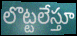
లొట్టలేస్తూ